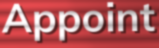
Appoint